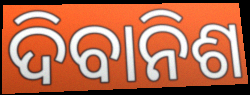
ଦିବାନିଶ